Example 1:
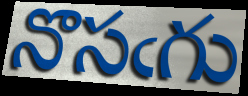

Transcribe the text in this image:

నొసఁగు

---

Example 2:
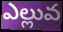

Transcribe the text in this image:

ఎల్లువ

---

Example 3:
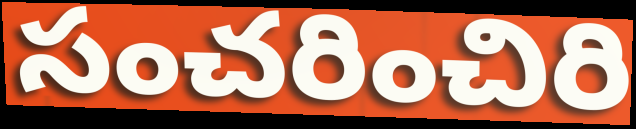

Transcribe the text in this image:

సంచరించిరి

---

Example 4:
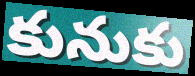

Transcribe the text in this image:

కునుకు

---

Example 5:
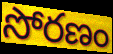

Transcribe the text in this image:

సోరణం